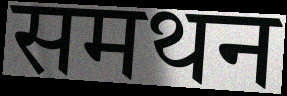
समथन